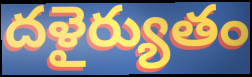
దళైర్యుతం